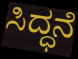
ಸಿದ್ಧನೆ